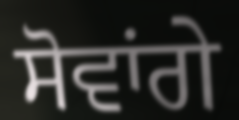
ਸੋਵਾਂਗੇ